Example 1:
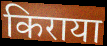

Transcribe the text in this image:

किराया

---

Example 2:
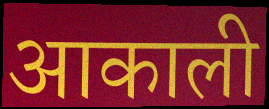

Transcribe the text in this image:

आकाली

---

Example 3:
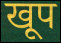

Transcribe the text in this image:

खूप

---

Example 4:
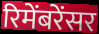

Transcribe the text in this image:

रिमेंबरेंसर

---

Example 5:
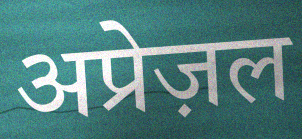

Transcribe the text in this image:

अप्रेज़ल